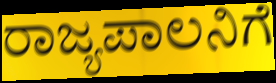
ರಾಜ್ಯಪಾಲನಿಗೆ